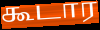
கூடார